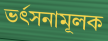
ভর্ৎসনামূলক